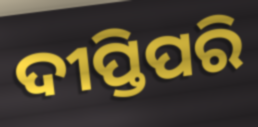
ଦୀପ୍ତିପରି